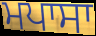
ਮਪਾਸਾ